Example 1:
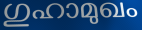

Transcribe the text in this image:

ഗുഹാമുഖം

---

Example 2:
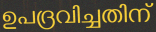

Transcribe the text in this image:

ഉപദ്രവിച്ചതിന്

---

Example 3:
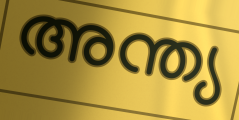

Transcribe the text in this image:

അന്ത്യ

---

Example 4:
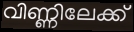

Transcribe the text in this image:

വിണ്ണിലേക്ക്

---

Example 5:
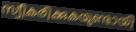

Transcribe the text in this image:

സ്വീകരിക്കുകയുണ്ടായി